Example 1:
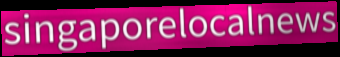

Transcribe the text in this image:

singaporelocalnews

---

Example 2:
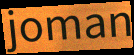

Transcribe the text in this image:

joman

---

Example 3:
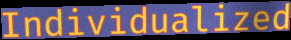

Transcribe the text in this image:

Individualized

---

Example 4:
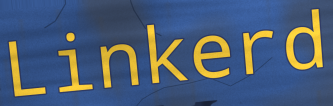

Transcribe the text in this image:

Linkerd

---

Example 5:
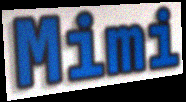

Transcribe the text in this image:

Mimi